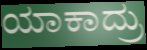
ಯಾಕಾದ್ರು